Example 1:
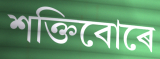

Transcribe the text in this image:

শক্তিবোৰে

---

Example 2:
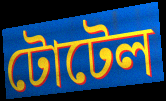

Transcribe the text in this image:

টোটেল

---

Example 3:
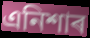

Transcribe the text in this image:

এনিশাৰ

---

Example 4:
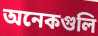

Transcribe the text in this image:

অনেকগুলি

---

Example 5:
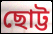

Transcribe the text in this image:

ছোট্ট